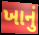
ખાનું